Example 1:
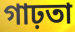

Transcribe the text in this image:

গাঢ়তা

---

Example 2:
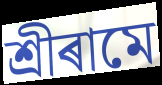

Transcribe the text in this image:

শ্ৰীৰামে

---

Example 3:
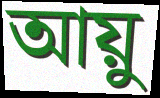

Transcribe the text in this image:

আয়ু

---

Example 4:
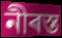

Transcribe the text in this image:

নীৰস্ত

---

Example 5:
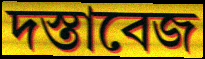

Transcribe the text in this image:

দস্তাবেজ